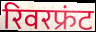
रिवरफ्रंट